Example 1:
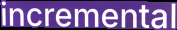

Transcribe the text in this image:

incremental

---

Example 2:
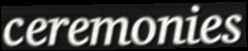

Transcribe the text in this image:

ceremonies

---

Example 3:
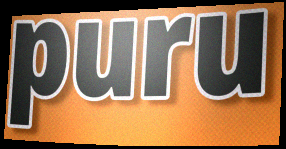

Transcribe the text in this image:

puru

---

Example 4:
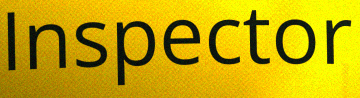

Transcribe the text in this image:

Inspector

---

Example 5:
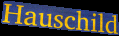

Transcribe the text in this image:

Hauschild